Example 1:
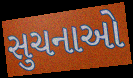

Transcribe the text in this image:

સુચનાઓ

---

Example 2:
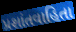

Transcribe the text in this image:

પ્રશાંતવાહિતા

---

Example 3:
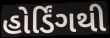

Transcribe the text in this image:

હોર્ડિંગથી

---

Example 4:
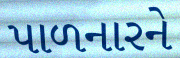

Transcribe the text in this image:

પાળનારને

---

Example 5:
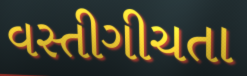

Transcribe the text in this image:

વસ્તીગીચતા